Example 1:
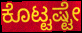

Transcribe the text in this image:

ಕೊಟ್ಟಷ್ಟೇ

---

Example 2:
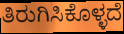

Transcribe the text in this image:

ತಿರುಗಿಸಿಕೊಳ್ಳದೆ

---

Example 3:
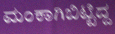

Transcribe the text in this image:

ಮಂಕಾಗಿಬಿಟ್ಟಿದ್ದ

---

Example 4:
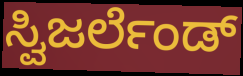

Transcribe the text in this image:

ಸ್ವಿಜರ್ಲೆಂಡ್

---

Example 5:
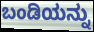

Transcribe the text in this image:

ಬಂಡಿಯನ್ನು